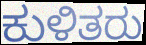
ಕುಳಿತರು